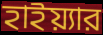
হাইয়্যার